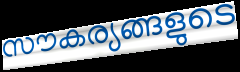
സൗകര്യങ്ങളുടെ